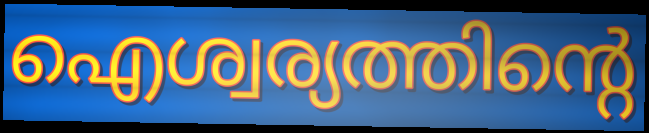
ഐശ്വര്യത്തിന്റെ